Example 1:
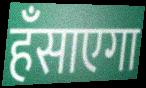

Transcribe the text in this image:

हँसाएगा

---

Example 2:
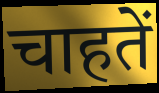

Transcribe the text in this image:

चाहतें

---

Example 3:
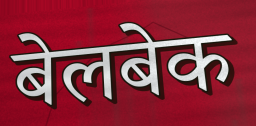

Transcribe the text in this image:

बेलबेक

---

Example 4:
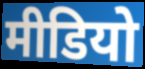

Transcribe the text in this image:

मीडियो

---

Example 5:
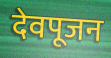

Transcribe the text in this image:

देवपूजन